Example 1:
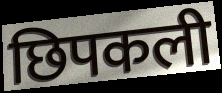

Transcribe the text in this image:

छिपकली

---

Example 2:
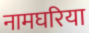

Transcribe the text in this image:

नामघरिया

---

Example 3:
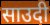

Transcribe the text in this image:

साउदी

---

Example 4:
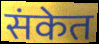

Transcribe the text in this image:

संकेत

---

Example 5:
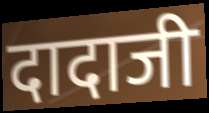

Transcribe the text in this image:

दादाजी